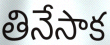
తినేసాక